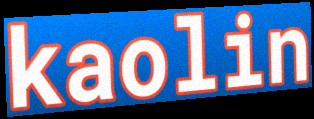
kaolin